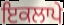
ਇਕਲਾਪੇ